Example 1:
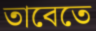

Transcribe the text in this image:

তাবেতে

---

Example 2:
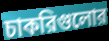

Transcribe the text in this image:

চাকরিগুলোর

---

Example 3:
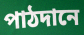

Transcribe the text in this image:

পাঠদানে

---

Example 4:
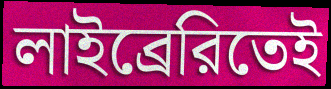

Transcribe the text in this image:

লাইব্রেরিতেই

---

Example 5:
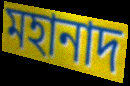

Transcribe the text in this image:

মহানাদ